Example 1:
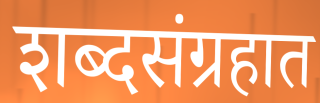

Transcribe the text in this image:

शब्दसंग्रहात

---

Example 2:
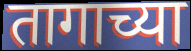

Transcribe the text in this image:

तागाच्या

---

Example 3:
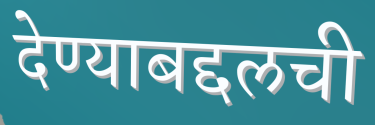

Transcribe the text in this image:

देण्याबद्दलची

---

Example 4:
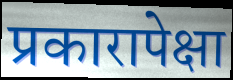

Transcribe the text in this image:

प्रकारापेक्षा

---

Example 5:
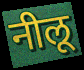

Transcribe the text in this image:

नीलू